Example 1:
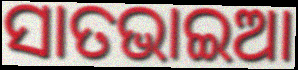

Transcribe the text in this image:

ସାତଭାଇଆ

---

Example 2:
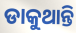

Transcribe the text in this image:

ଡାକୁଥାନ୍ତି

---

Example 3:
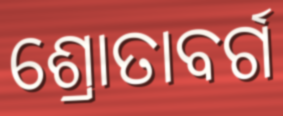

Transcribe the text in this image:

ଶ୍ରୋତାବର୍ଗ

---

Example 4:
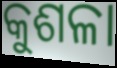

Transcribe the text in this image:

କୁଶଳା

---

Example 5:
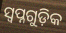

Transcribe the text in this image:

ସ୍ଵପ୍ନଗୁଡ଼ିକ